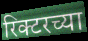
रिक्टरच्या